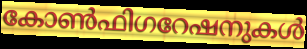
കോൺഫിഗറേഷനുകൾ